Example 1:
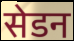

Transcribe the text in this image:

सेडन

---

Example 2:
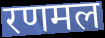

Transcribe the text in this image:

रणमल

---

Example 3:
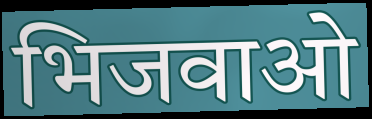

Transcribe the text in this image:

भिजवाओ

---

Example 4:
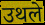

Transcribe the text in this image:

उथले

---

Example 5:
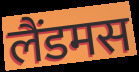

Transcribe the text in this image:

लैंडमस